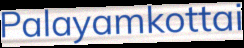
Palayamkottai